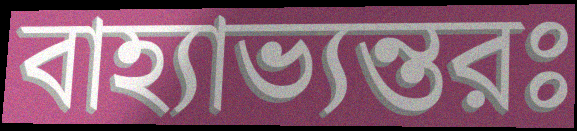
বাহ্যাভ্যন্তরঃ